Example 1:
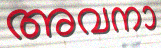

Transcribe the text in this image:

അവനാ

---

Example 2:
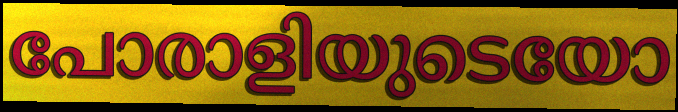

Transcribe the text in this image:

പോരാളിയുടെയോ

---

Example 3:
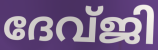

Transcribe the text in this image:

ദേവ്ജി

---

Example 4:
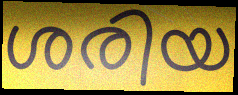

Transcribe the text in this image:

ശരിയ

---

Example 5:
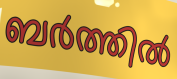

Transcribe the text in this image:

ബർത്തിൽ